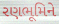
રણભૂમિને